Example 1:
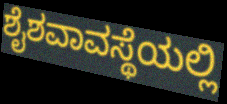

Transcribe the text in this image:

ಶೈಶವಾವಸ್ಥೆಯಲ್ಲಿ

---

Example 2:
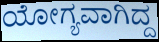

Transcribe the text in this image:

ಯೋಗ್ಯವಾಗಿದ್ದ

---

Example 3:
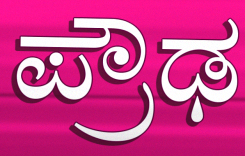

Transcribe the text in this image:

ಪ್ರೌಢ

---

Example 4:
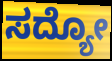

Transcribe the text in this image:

ಸದ್ಯೋ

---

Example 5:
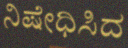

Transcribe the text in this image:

ನಿಷೇಧಿಸಿದ